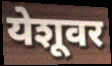
येशूवर